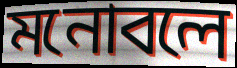
মনোবলে